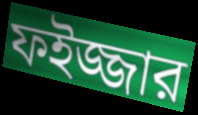
ফইজ্জার